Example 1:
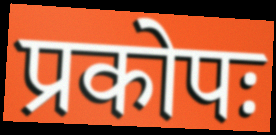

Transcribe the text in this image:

प्रकोपः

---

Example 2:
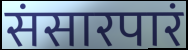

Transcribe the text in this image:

संसारपारं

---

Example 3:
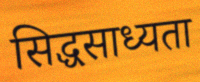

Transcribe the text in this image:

सिद्धसाध्यता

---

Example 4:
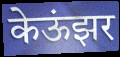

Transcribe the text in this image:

केऊंझर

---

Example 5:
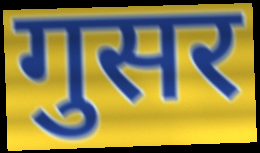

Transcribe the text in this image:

गुसर